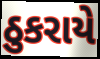
ઠુકરાયે